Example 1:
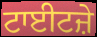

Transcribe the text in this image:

ਟਾਈਟਜ਼ੇ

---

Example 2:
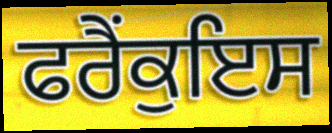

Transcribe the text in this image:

ਫਰੈਂਕੁਇਸ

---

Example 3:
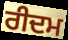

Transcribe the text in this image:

ਰੀਦਮ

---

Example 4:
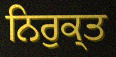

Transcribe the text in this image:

ਨਿਰੁਕ੍ਤ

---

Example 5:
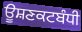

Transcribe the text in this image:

ਊਸ਼ਣਕਟਬੰਧੀ